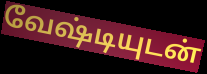
வேஷ்டியுடன்